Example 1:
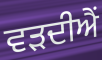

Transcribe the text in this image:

ਵੜਦੀਐਂ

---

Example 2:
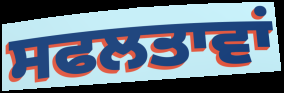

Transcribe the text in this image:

ਸਫਲਤਾਵਾਂ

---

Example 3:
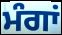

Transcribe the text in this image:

ਮੰਗਾਂ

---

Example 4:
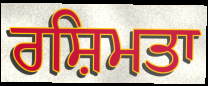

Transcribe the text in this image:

ਰਸ਼ਿਮਤਾ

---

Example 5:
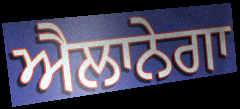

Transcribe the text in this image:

ਐਲਾਨੇਗਾ